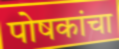
पोषकांचा